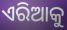
ଏରିଆକୁ